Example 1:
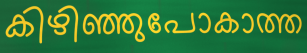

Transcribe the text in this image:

കിഴിഞ്ഞുപോകാത്ത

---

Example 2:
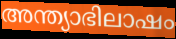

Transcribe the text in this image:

അന്ത്യാഭിലാഷം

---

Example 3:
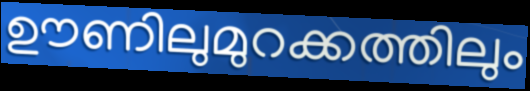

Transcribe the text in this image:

ഊണിലുമുറക്കത്തിലും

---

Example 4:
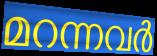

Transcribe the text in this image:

മറന്നവർ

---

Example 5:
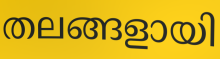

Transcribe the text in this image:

തലങ്ങളായി